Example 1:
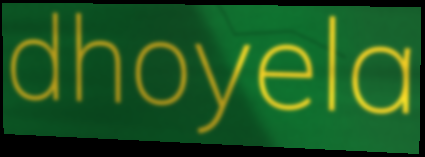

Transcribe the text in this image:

dhoyela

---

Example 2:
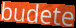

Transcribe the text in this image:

budete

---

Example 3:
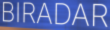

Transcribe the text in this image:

BIRADAR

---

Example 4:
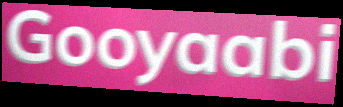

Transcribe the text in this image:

Gooyaabi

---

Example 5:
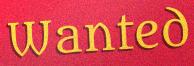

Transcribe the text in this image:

Wanted